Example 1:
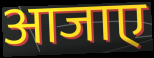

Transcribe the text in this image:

आजाए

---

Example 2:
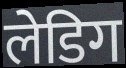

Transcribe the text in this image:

लेडिग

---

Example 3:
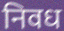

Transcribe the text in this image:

निवध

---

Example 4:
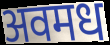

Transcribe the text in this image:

अवमध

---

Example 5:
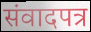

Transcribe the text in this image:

संवादपत्र